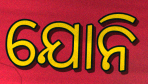
ଯୋନି